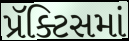
પ્રૅક્ટિસમાં